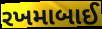
રખમાબાઈ